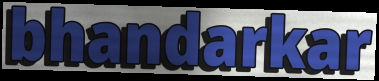
bhandarkar